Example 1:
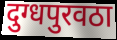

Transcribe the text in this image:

दुग्धपुरवठा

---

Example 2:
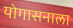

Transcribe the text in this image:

योगासनाला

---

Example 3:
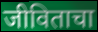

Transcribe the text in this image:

जीविताचा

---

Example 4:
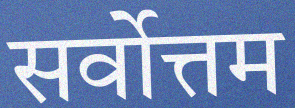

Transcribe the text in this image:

सर्वोत्तम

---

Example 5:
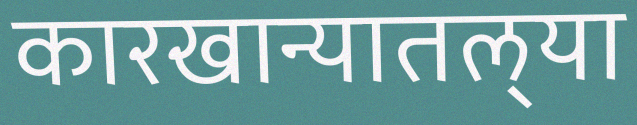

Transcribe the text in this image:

कारखान्यातल्या